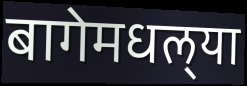
बागेमधल्या